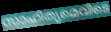
സാഹിത്യമെവിടെ